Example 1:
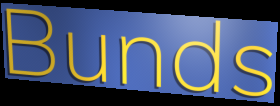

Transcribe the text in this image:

Bunds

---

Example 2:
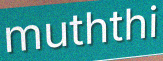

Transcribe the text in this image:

muththi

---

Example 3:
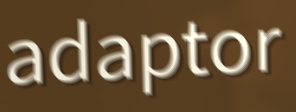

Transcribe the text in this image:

adaptor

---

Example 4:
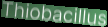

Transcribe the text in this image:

Thiobacillus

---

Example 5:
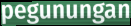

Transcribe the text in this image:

pegunungan